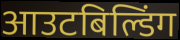
आउटबिल्डिंग